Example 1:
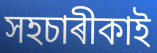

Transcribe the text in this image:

সহচাৰীকাই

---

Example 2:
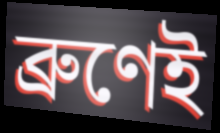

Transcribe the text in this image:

ব্ৰুণেই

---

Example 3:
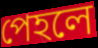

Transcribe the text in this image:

পেহলে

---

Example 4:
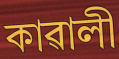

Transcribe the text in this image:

কাৱালী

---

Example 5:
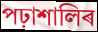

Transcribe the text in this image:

পঢ়াশালিৰ